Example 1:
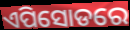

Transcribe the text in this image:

ଏପିସୋଡରେ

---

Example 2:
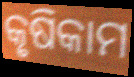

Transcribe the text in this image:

କୃଷିକାମ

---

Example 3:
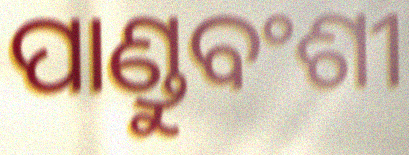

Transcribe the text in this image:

ପାଣ୍ଡୁବଂଶୀ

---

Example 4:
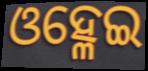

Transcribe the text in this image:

ଓହ୍ଳେଇ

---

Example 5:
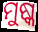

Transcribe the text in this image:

ମୁଷ୍କ